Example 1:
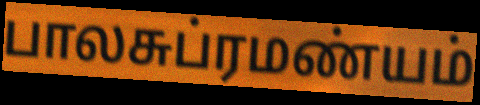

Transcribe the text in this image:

பாலசுப்ரமண்யம்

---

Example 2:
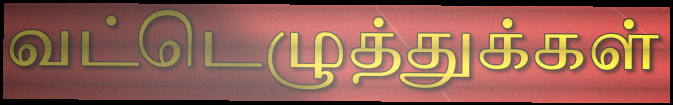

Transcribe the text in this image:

வட்டெழுத்துக்கள்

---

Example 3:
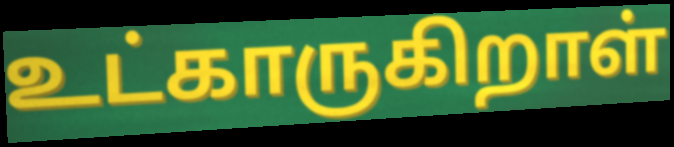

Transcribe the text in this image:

உட்காருகிறாள்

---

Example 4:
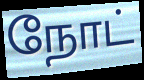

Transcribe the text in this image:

நோட்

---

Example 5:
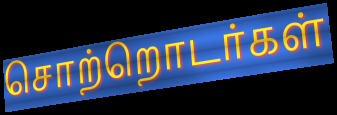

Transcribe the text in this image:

சொற்றொடர்கள்